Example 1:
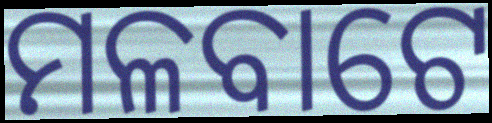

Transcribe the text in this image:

ମଳବାଟେ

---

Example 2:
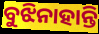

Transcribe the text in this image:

ବୁଝିନାହାନ୍ତି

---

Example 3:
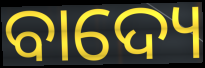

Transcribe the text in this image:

ବାଦ୍ୟେ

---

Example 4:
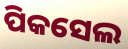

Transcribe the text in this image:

ପିକସେଲ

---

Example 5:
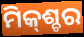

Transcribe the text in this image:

ମିକ୍‌ଶ୍ଚର